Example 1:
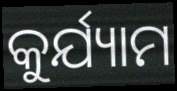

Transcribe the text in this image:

କୁର୍ଯ୍ୟାମ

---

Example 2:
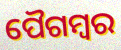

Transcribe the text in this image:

ପୈଗମ୍ବର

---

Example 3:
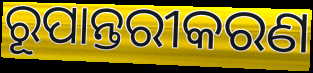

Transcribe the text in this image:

ରୂପାନ୍ତରୀକରଣ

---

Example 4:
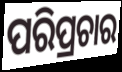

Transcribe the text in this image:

ପରିପ୍ରଚାର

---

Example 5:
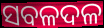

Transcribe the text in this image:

ସବଳଦଳ